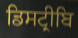
ਡਿਸਟ੍ਰੀਬਿ